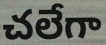
చలేగా